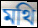
মথি